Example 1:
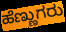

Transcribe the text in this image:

ಹೆಣ್ಣುಗರು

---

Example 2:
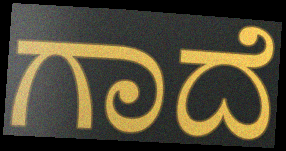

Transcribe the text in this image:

ಗಾದೆ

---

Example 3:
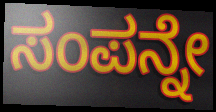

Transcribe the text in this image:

ಸಂಪನ್ನೇ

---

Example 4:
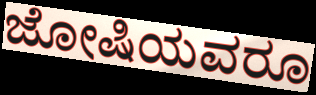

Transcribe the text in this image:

ಜೋಷಿಯವರೂ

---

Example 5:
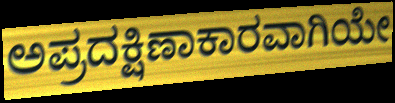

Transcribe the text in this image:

ಅಪ್ರದಕ್ಷಿಣಾಕಾರವಾಗಿಯೇ